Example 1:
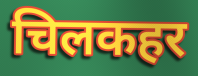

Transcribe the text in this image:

चिलकहर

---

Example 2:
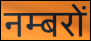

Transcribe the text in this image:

नम्बरों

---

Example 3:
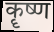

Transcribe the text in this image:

कॄष्ण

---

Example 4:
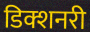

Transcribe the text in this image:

डिक्‍शनरी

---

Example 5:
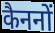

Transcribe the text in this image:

कैननों